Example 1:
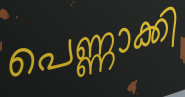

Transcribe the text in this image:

പെണ്ണാക്കി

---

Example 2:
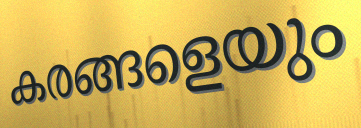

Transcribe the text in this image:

കരങ്ങളെയും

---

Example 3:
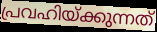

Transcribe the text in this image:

പ്രവഹിയ്ക്കുന്നത്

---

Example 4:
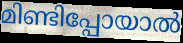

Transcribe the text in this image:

മിണ്ടിപ്പോയാൽ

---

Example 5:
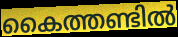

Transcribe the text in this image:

കൈത്തണ്ടിൽ